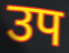
उप